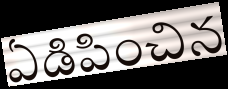
ఏడిపించిన